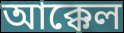
আক্কেল